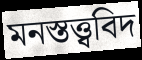
মনস্তত্ত্ববিদ